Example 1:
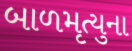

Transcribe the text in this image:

બાળમૃત્યુના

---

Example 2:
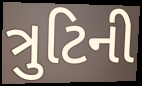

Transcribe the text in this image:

ત્રુટિની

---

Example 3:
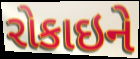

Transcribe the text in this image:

રોકાઇને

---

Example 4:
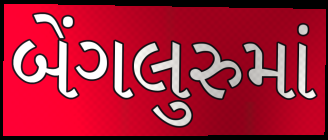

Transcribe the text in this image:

બેંગલુરુમાં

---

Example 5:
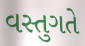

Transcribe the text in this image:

વસ્તુગતે